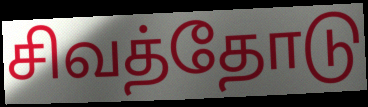
சிவத்தோடு